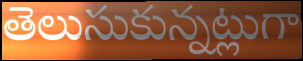
తెలుసుకున్నట్లుగా